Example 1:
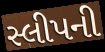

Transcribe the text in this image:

સ્લીપની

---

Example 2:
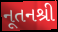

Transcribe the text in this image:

નૂતનશ્રી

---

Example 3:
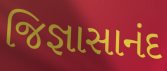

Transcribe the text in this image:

જિજ્ઞાસાનંદ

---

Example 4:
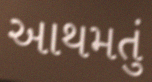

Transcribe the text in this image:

આથમતું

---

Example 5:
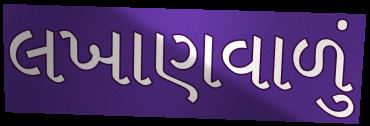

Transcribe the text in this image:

લખાણવાળું